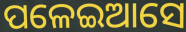
ପଳେଇଆସେ